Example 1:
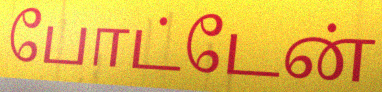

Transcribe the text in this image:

போட்டேன்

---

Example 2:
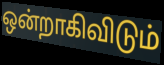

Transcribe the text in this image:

ஒன்றாகிவிடும்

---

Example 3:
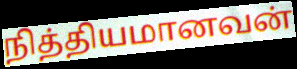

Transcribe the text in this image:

நித்தியமானவன்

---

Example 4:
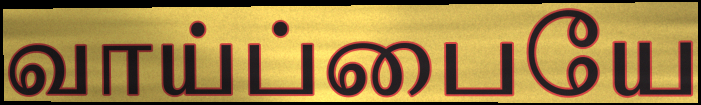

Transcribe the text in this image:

வாய்ப்பையே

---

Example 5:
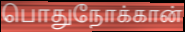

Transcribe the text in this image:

பொதுநோக்கான்